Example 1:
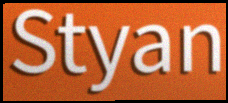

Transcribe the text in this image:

Styan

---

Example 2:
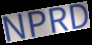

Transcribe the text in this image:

NPRD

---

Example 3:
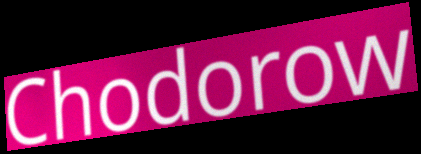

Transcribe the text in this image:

Chodorow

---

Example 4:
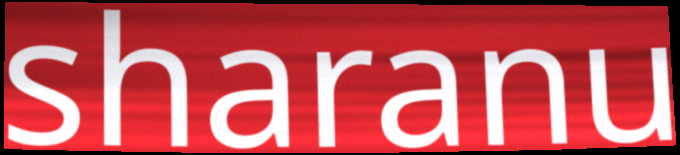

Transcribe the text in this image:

sharanu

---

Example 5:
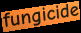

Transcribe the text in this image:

fungicide